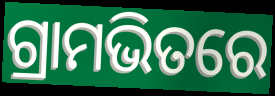
ଗ୍ରାମଭିତରେ